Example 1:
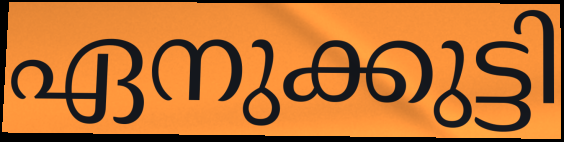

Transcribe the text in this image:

ഏനുക്കുട്ടി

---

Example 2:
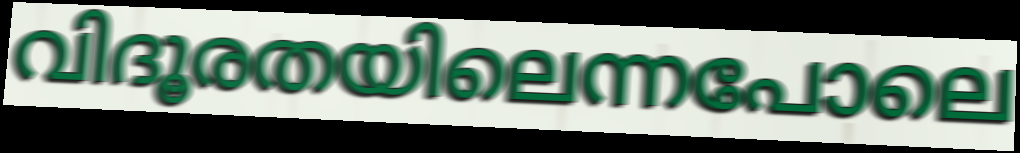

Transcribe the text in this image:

വിദൂരതയിലെന്നപോലെ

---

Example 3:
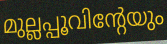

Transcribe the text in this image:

മുല്ലപ്പൂവിന്റേയും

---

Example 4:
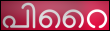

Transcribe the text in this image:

പിറൈ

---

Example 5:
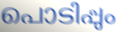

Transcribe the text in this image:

പൊടിപ്പും